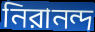
নিরানন্দ